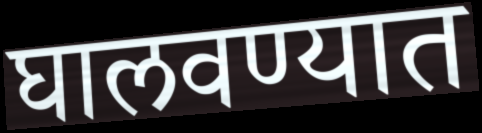
घालवण्यात